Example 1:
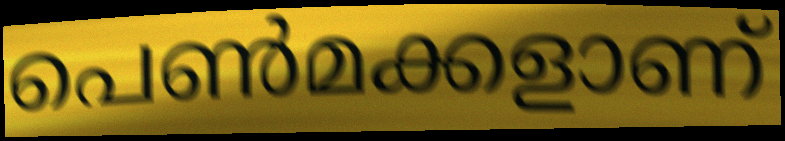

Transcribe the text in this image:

പെൺമക്കളാണ്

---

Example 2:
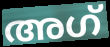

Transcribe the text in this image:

അഗ്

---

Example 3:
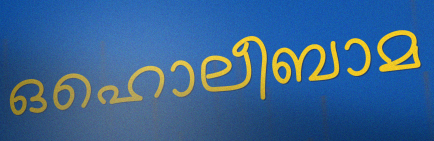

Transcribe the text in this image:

ഒഹൊലീബാമ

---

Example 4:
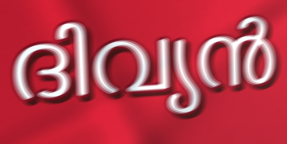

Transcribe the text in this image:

ദിവ്യൻ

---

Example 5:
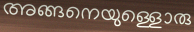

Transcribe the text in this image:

അങ്ങനെയുള്ളൊരു